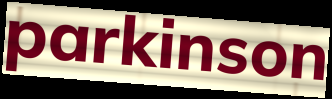
parkinson